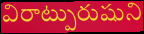
విరాట్పురుషుని